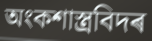
অংকশাস্ত্ৰবিদৰ